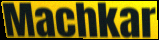
Machkar